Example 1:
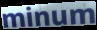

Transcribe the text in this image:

minum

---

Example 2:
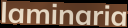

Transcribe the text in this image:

laminaria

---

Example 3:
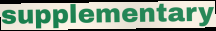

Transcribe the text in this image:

supplementary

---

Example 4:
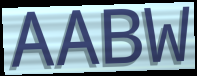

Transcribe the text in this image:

AABW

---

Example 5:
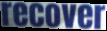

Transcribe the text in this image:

recover